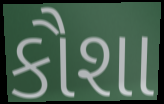
કૌશા